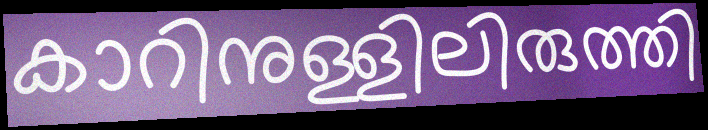
കാറിനുള്ളിലിരുത്തി